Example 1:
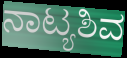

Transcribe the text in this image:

ನಾಟ್ಯಶಿವ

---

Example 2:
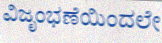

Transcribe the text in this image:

ವಿಜೃಂಭಣೆಯಿಂದಲೇ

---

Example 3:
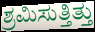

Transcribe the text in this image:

ಶ್ರಮಿಸುತ್ತಿತ್ತು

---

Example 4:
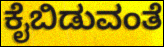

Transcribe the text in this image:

ಕೈಬಿಡುವಂತೆ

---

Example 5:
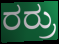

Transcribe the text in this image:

ರರ್ರು